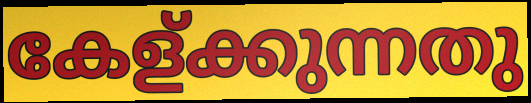
കേള്ക്കുന്നതു